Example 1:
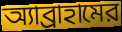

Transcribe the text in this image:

অ্যাব্রাহামের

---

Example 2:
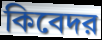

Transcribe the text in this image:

কিবেদর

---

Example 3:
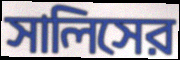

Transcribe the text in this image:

সালিসের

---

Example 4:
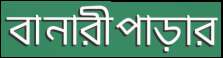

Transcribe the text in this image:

বানারীপাড়ার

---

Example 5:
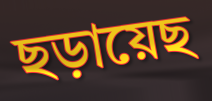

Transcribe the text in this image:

ছড়ায়েছ